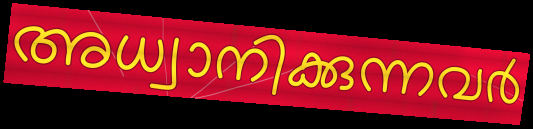
അധ്വാനിക്കുന്നവർ